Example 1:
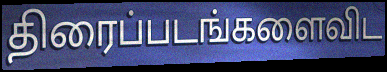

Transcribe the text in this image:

திரைப்படங்களைவிட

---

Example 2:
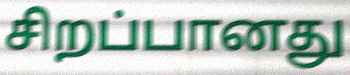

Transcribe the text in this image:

சிறப்பானது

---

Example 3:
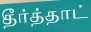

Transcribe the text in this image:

தீர்த்தாட்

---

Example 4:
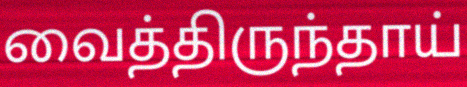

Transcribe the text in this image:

வைத்திருந்தாய்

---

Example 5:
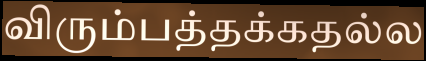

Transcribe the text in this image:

விரும்பத்தக்கதல்ல